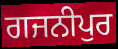
ਗਜਨੀਪੁਰ